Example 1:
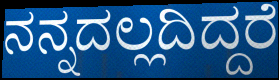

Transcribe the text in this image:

ನನ್ನದಲ್ಲದಿದ್ದರೆ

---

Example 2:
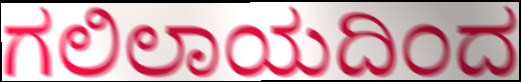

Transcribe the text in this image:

ಗಲಿಲಾಯದಿಂದ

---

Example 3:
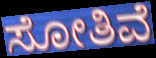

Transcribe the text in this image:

ಸೋತಿವೆ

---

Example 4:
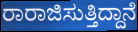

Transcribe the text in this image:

ರಾರಾಜಿಸುತ್ತಿದ್ದಾನೆ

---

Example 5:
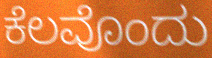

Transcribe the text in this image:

ಕೆಲವೊಂದು